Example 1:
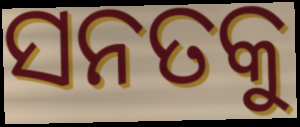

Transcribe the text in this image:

ସନତକୁ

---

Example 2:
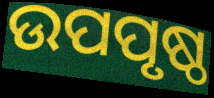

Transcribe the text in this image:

ଉପପୃଷ୍ଠ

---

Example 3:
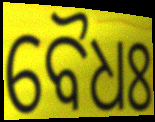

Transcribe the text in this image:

ବୈଧଃ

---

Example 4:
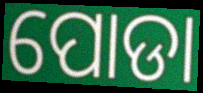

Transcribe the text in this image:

ପୋଡା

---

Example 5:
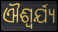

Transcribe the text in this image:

ଐଶ୍ଵର୍ଯ୍ୟ